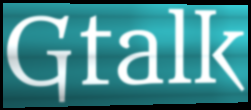
Gtalk